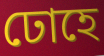
ঢোহে